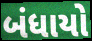
બંધાયો